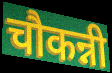
चौकन्नी